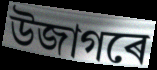
উজাগৰে